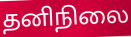
தனிநிலை